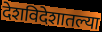
देशविदेशातल्या